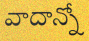
వాదాన్నో